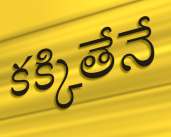
కక్కితేనే